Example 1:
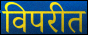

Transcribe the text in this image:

विपरीत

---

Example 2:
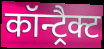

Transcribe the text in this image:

कॉन्ट्रैक्ट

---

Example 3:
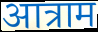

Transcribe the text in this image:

आत्राम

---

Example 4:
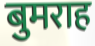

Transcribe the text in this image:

बुमराह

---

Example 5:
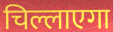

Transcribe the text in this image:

चिल्लाएगा